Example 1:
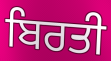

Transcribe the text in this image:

ਬਿਰਤੀ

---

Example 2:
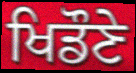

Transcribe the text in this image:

ਖਿਡੌਣੇ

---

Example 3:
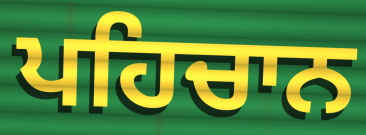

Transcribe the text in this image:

ਪਹਿਚਾਨ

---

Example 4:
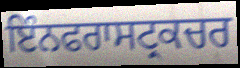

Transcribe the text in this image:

ਇੰਨਫਰਾਸਟ੍ਰਕਚਰ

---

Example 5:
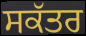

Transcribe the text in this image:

ਸਕੱਤਰ